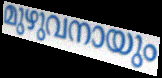
മുഴുവനായും